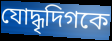
যোদ্ধৃদিগকে